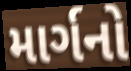
માર્ગનો